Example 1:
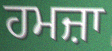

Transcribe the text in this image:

ਹਮਜ਼ਾ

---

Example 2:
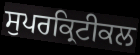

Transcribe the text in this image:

ਸੁਪਰਕ੍ਰਿਟੀਕਲ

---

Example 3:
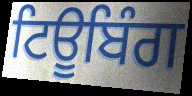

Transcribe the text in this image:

ਟਿਊਬਿੰਗ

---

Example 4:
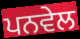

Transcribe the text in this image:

ਪਨਵੇਲ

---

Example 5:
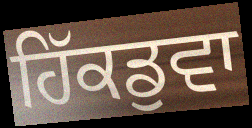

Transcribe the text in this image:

ਹਿੱਕਡੁਵਾ